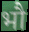
भौ